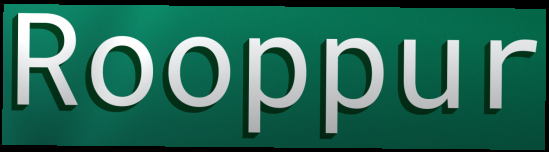
Rooppur